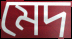
মেদ